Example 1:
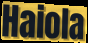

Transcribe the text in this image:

Haiola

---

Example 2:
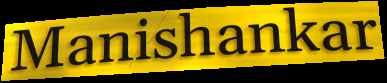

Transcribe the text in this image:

Manishankar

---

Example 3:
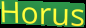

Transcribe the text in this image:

Horus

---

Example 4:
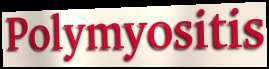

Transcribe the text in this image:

Polymyositis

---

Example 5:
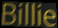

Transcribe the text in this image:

Billie